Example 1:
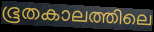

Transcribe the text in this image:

ഭൂതകാലത്തിലെ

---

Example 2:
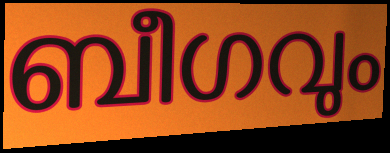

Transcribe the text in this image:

ബീഗവും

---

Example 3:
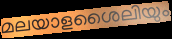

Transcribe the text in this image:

മലയാളശൈലിയും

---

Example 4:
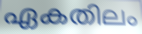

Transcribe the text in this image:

ഏകതിലം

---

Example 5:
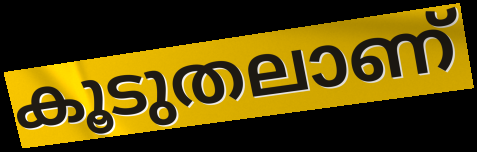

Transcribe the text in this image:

കൂടുതലാണ്